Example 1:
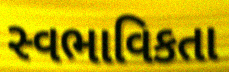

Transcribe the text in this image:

સ્વભાવિકતા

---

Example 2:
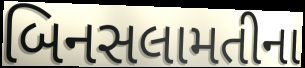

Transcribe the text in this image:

બિનસલામતીના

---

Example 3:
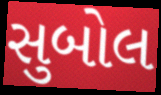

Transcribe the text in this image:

સુબોલ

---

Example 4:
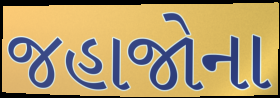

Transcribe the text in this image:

જહાજોના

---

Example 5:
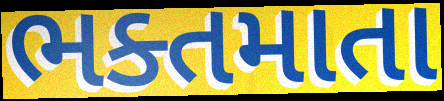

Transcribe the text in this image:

ભક્તમાતા